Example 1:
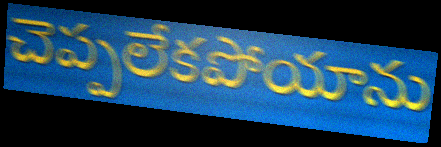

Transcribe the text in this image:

చెప్పలేకపోయాను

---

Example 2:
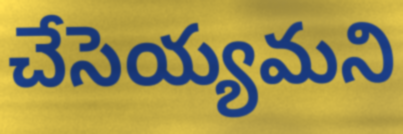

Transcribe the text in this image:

చేసెయ్యమని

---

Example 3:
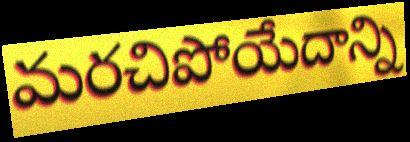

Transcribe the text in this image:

మరచిపోయేదాన్ని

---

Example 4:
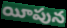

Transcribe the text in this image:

యీపున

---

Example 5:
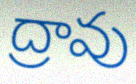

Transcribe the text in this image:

ద్రావు